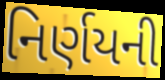
નિર્ણયની